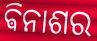
ଵିନାଶର